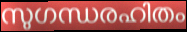
സുഗന്ധരഹിതം